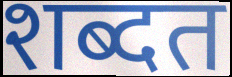
शब्दत